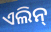
ଏଲିନ୍